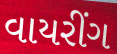
વાયરીંગ